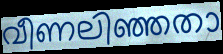
വീണലിഞ്ഞതാ